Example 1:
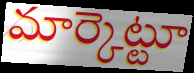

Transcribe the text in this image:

మార్కెట్టూ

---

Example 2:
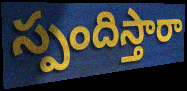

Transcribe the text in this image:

స్పందిస్తారా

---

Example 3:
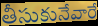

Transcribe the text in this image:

తీసుకునేవారే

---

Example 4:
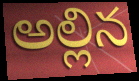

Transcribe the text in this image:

అల్లిన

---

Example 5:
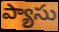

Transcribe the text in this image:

ప్యాసు